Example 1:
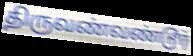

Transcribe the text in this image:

திருவண்வண்டூர்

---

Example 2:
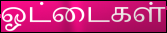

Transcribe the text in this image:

ஓட்டைகள்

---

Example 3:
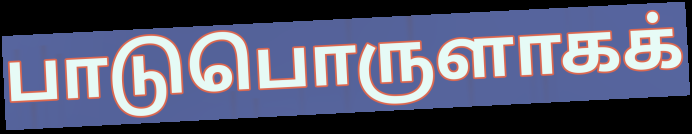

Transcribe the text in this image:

பாடுபொருளாகக்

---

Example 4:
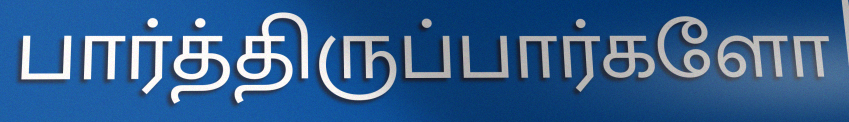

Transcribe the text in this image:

பார்த்திருப்பார்களோ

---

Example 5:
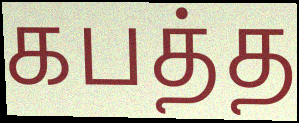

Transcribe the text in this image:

கபத்த